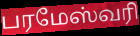
பரமேஸ்வரி